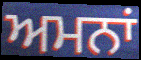
ਅਮਨਾਂ